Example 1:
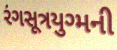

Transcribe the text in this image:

રંગસૂત્રયુગ્મની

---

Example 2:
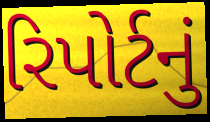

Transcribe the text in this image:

રિપોર્ટનું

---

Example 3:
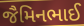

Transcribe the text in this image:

જૈમિનભાઈ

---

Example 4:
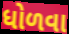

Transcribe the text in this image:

ધોળવા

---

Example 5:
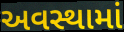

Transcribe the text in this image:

અવસ્થામાં